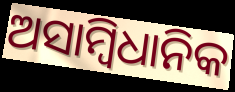
ଅସାମ୍ୱିଧାନିକ